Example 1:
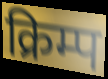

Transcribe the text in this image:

क्रिम्प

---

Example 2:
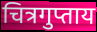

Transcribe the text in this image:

चित्रगुप्ताय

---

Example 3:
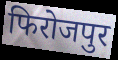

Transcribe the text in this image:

फिरोजपुर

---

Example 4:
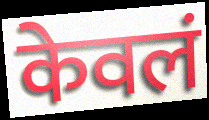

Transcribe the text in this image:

केवलं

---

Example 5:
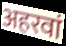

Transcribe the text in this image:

अहरवां